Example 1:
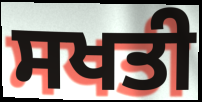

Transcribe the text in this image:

ਸਖਤੀ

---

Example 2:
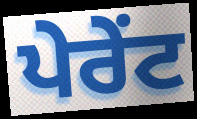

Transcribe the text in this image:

ਪੇਰੇਂਟ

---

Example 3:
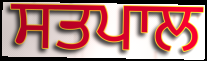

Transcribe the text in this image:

ਸਤਪਾਲ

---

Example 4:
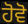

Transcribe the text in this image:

ਹੋਵੋ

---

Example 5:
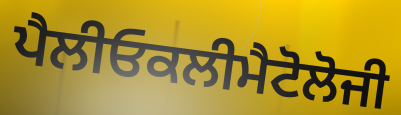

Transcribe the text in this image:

ਪੈਲੀਓਕਲੀਮੈਟੋਲੋਜੀ